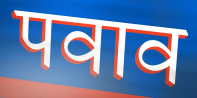
पवाव